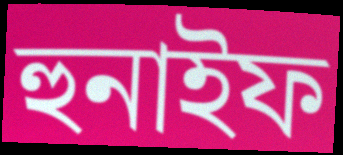
হুনাইফ